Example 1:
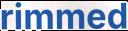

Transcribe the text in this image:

rimmed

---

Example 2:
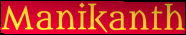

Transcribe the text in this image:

Manikanth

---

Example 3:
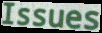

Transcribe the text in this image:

Issues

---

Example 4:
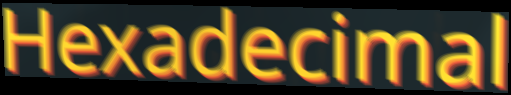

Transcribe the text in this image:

Hexadecimal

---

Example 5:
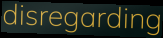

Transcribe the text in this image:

disregarding